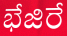
భేజిరే